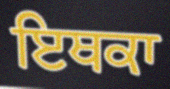
ਇਥਕਾ